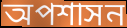
অপশাসন